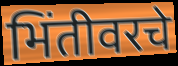
भिंतीवरचे